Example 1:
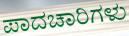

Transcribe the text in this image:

ಪಾದಚಾರಿಗಳು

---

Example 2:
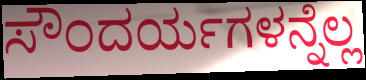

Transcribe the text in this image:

ಸೌಂದರ್ಯಗಳನ್ನೆಲ್ಲ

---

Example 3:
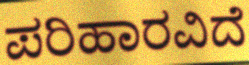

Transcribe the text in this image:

ಪರಿಹಾರವಿದೆ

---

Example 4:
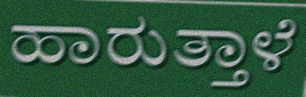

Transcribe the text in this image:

ಹಾರುತ್ತಾಳೆ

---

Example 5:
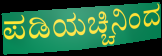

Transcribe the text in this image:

ಪಡಿಯಚ್ಚಿನಿಂದ